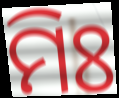
ମିଃ